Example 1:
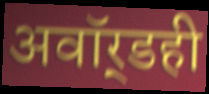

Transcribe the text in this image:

अवॉर्डही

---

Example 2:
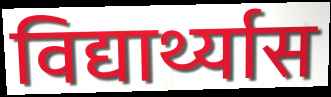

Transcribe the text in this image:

विद्यार्थ्यास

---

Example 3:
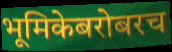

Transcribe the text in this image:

भूमिकेबरोबरच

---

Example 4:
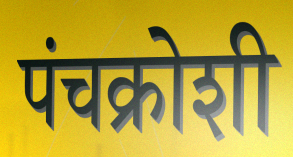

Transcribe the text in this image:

पंचक्रोशी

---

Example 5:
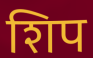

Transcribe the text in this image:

शिप